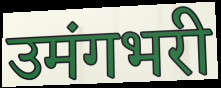
उमंगभरी